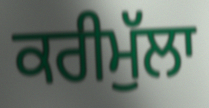
ਕਰੀਮੁੱਲਾ